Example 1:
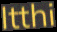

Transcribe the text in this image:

Itthi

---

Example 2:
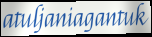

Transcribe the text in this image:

atuljaniagantuk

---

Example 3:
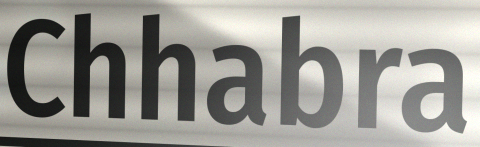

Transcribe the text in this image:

Chhabra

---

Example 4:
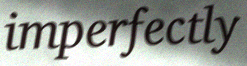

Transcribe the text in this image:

imperfectly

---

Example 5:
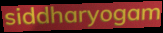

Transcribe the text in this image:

siddharyogam